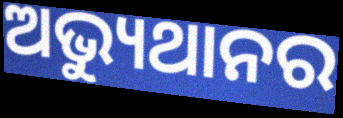
ଅଭ୍ୟୁଥାନର